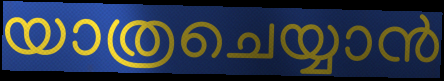
യാത്രചെയ്യാൻ